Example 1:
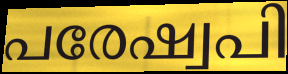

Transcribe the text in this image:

പരേഷ്വപി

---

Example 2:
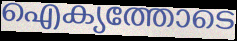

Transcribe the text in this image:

ഐക്യത്തോടെ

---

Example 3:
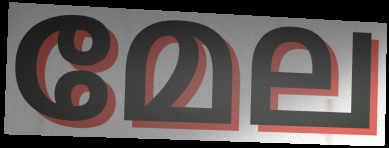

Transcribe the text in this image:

മേല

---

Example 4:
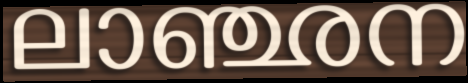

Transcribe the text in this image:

ലാഞ്ഛന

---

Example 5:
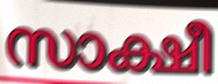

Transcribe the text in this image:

സാക്ഷീ